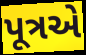
પૂત્રએ